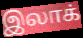
இலாக்